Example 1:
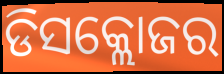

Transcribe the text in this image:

ଡିସକ୍ଲୋଜର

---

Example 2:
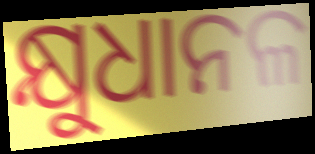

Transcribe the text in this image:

କ୍ଷୁଧାନଳ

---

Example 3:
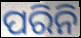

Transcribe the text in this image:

ପରିନି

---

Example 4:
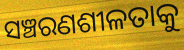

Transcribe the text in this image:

ସଞ୍ଚରଣଶୀଳତାକୁ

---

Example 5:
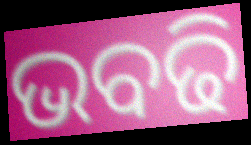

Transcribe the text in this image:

ଭବଢି